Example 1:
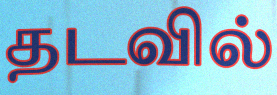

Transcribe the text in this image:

தடவில்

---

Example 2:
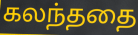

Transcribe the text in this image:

கலந்ததை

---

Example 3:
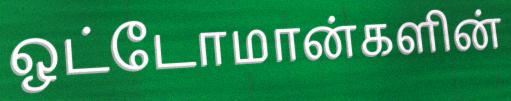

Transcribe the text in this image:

ஒட்டோமான்களின்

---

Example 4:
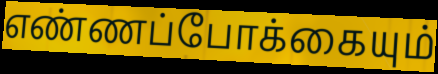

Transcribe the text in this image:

எண்ணப்போக்கையும்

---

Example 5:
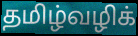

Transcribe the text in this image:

தமிழ்வழிக்